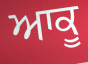
ਆਕੂ